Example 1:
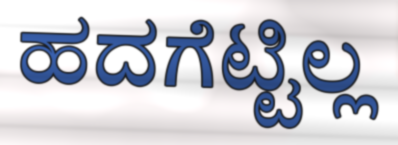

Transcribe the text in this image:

ಹದಗೆಟ್ಟಿಲ್ಲ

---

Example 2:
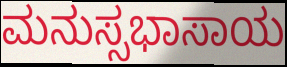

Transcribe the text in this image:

ಮನುಸ್ಸಭಾಸಾಯ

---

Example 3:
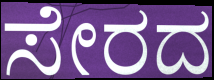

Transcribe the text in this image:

ಸೇರದ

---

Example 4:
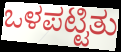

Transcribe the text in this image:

ಒಳಪಟ್ಟಿತು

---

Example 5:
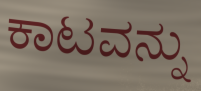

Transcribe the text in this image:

ಕಾಟವನ್ನು